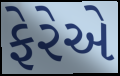
ફેરેએ